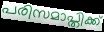
പരിസമാപ്തിക്ക്